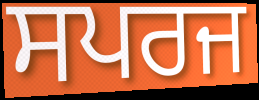
ਸਪਰਜ